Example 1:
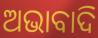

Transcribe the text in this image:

ଅଭାବାଦି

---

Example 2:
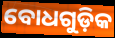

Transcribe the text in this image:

ବୋଧଗୁଡ଼ିକ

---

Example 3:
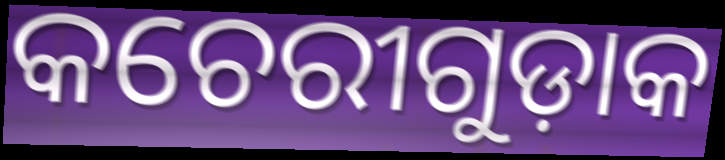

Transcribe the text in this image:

କଚେରୀଗୁଡ଼ାକ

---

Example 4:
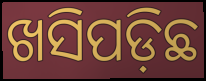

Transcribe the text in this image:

ଖସିପଡ଼ିଛ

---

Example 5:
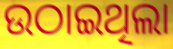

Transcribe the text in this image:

ଉଠାଇଥିଲା